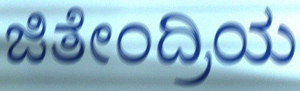
ಜಿತೇಂದ್ರಿಯ